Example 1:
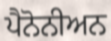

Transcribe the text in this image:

ਪੈਨੋਨੀਅਨ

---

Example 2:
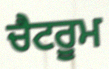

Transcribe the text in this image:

ਚੈਟਰੂਮ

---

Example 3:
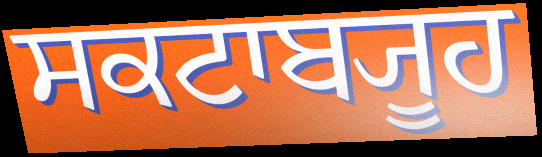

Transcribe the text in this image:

ਸਕਟਾਬ੍ਯੂਹ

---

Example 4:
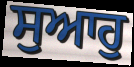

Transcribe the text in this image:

ਸੁਆਹੁ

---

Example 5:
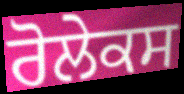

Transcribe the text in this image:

ਰੋਲੇਕਸ